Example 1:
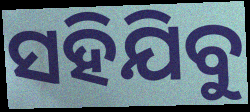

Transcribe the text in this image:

ସହିଯିବୁ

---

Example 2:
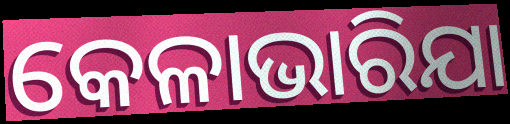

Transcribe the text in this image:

କେଳାଭାରିଯା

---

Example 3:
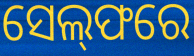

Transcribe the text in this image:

ସେଲ୍‌ଫରେ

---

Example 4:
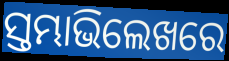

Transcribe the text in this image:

ସ୍ତମ୍ଭାଭିଲେଖରେ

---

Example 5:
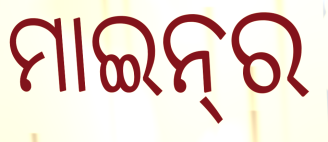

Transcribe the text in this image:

ମାଇନ୍‍ର